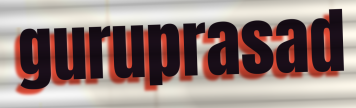
guruprasad